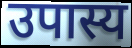
उपास्य